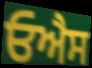
ਓਐਸ